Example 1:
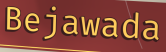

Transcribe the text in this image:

Bejawada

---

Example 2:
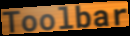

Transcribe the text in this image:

Toolbar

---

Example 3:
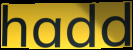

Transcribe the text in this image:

hadd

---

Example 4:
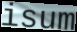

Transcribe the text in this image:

isum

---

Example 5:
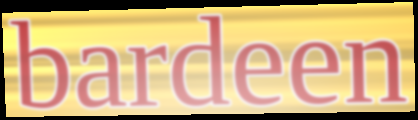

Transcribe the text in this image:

bardeen